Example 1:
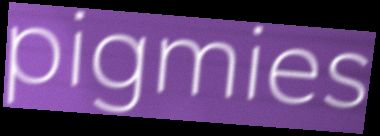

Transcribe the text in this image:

pigmies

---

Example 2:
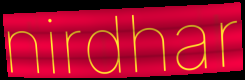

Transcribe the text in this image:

nirdhar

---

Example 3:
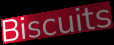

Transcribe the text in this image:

Biscuits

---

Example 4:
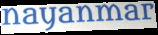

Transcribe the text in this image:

nayanmar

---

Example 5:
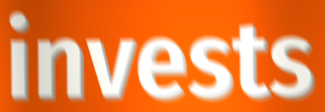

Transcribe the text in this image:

invests